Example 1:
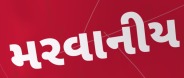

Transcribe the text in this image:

મરવાનીય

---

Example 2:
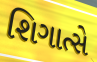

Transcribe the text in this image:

શિગાત્સે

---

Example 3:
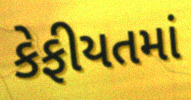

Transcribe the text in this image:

કેફીયતમાં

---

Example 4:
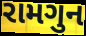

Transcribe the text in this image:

રામગુન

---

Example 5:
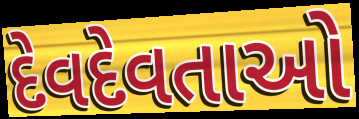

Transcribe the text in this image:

દેવદેવતાઓ